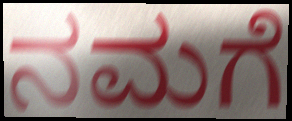
ನಮಗೆ